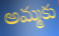
అమ్మకు